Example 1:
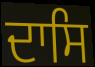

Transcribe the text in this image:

ਦਾਸਿ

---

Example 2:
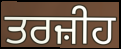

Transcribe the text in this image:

ਤਰਜ਼ੀਹ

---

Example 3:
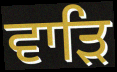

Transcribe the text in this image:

ਵਾੜਿ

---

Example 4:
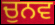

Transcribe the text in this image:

ਚੁਨਵ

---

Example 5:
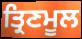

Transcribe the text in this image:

ਤ੍ਰਿਣਮੂਲ